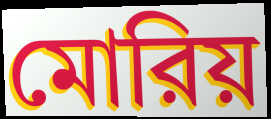
মোরিয়